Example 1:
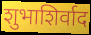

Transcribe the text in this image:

शुभाशिर्वाद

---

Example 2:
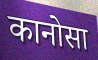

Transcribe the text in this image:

कानोसा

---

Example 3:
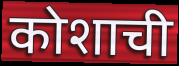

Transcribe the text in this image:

कोशाची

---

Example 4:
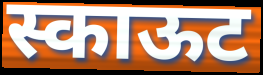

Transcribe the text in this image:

स्काऊट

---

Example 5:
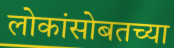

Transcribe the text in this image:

लोकांसोबतच्या